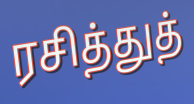
ரசித்துத்